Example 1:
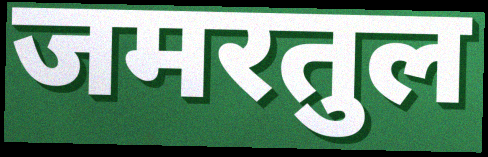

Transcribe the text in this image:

जमरतुल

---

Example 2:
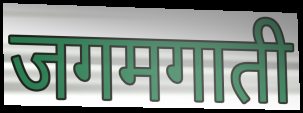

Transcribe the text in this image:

जगमगाती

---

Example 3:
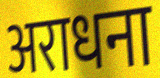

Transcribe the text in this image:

अराधना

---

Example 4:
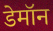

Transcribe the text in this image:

डेमॉन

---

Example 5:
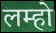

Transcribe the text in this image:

लम्हो